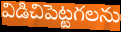
విడిచిపెట్టగలను